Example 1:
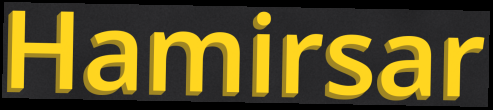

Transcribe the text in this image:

Hamirsar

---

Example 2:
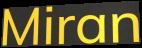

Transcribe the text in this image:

Miran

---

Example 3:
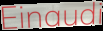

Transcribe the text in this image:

Einaudi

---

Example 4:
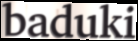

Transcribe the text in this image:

baduki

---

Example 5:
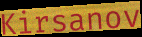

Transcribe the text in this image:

Kirsanov